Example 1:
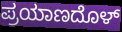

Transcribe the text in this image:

ಪ್ರಯಾಣದೊಳ್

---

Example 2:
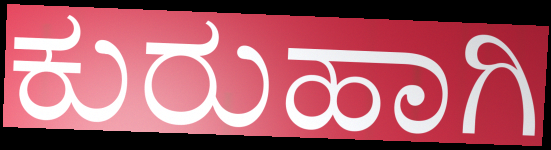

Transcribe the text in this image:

ಕುರುಹಾಗಿ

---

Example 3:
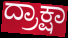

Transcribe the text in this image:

ದ್ರಾಕ್ಷಾ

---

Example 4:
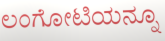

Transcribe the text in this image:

ಲಂಗೋಟಿಯನ್ನೂ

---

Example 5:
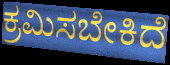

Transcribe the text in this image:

ಕ್ರಮಿಸಬೇಕಿದೆ